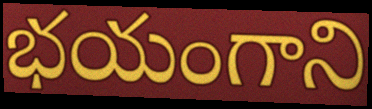
భయంగాని